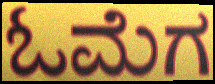
ಓಮೆಗ